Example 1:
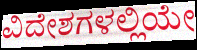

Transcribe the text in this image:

ವಿದೇಶಗಳಲ್ಲಿಯೇ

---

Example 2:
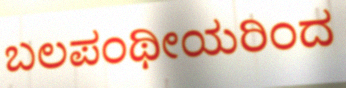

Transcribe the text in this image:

ಬಲಪಂಥೀಯರಿಂದ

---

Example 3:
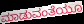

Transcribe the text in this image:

ಮಾಡುವಂತೆಯೂ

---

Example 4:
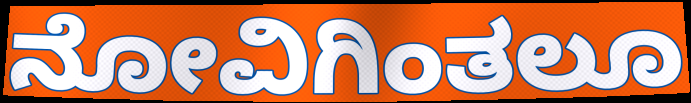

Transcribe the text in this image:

ನೋವಿಗಿಂತಲೂ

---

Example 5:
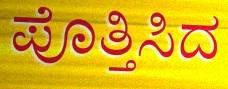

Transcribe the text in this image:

ಪೊತ್ತಿಸಿದ